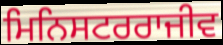
ਮਿਨਿਸਟਰਰਾਜੀਵ